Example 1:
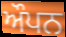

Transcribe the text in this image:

ਔਪਨ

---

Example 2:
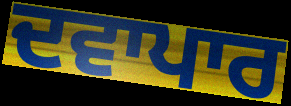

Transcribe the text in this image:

ਦਵਾਪਾਰ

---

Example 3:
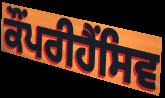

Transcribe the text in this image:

ਕੌਂਪਰੀਹੈਂਸਿਵ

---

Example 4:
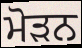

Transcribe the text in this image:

ਮੋੜਨ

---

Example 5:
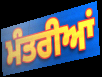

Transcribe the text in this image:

ਮੰਤਰੀਆਂ